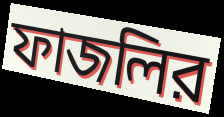
ফাজলির